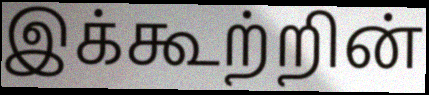
இக்கூற்றின்